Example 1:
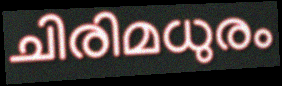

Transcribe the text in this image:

ചിരിമധുരം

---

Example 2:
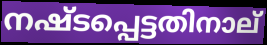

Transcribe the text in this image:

നഷ്ടപ്പെട്ടതിനാല്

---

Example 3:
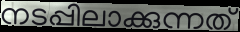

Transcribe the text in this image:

നടപ്പിലാക്കുന്നത്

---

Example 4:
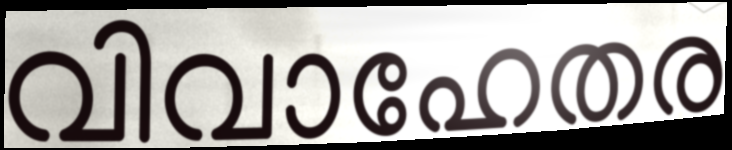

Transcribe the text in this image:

വിവാഹേതര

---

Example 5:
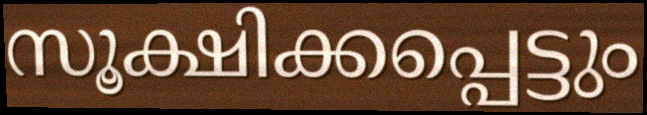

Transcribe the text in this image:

സൂക്ഷിക്കപ്പെട്ടും